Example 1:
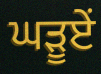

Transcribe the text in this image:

ਘੜੂਏਂ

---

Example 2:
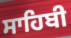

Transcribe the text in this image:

ਸਾਹਿਬੀ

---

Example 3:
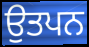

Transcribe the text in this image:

ਉਤਪਨ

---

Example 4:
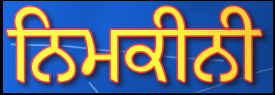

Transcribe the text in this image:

ਨਿਮਕੀਨੀ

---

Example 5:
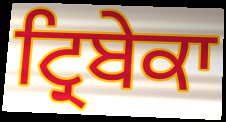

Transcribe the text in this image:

ਟ੍ਰਿਬੇਕਾ